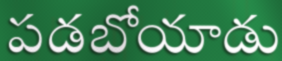
పడబోయాడు